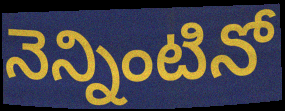
నెన్నింటినో